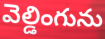
వెల్డింగును